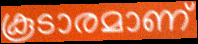
കൂടാരമാണ്